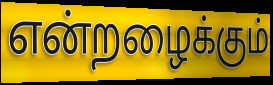
என்றழைக்கும்